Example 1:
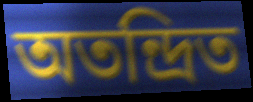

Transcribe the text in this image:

অতন্দ্রিত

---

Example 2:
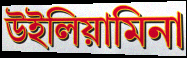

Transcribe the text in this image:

উইলিয়ামিনা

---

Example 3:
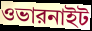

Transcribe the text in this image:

ওভারনাইট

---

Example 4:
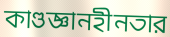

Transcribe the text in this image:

কাণ্ডজ্ঞানহীনতার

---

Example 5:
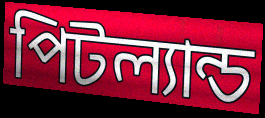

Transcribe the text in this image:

পিটল্যান্ড